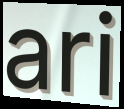
ari